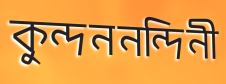
কুন্দননন্দিনী